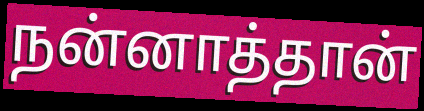
நன்னாத்தான்